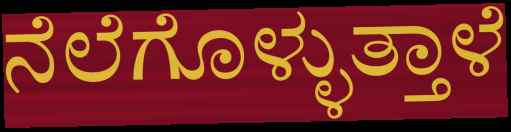
ನೆಲೆಗೊಳ್ಳುತ್ತಾಳೆ